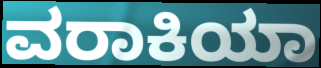
ವರಾಕಿಯಾ